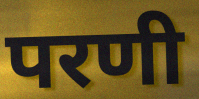
परणी